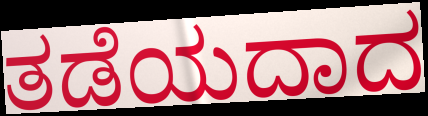
ತಡೆಯದಾದ